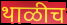
थाळीच